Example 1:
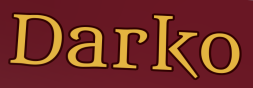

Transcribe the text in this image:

Darko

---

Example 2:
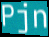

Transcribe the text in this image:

Pjn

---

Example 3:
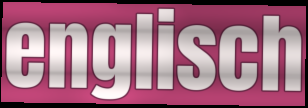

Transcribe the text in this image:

englisch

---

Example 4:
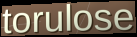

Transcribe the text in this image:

torulose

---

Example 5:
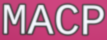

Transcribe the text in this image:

MACP